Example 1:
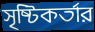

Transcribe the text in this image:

সৃষ্টিকর্তার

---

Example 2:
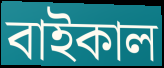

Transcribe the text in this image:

বাইকাল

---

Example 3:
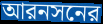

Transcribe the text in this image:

আরনসনের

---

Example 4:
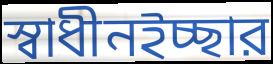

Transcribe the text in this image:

স্বাধীনইচ্ছার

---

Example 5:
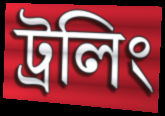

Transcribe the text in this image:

ট্রলিং